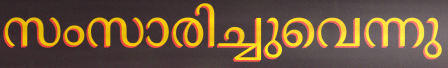
സംസാരിച്ചുവെന്നു